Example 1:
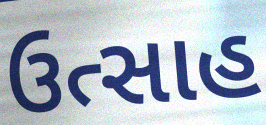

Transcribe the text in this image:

ઉત્સાહ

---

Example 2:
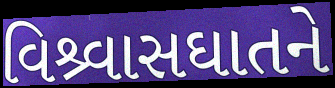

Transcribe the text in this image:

વિશ્ર્વાસઘાતને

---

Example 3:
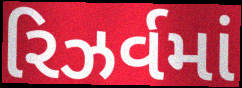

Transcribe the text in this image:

રિઝર્વમાં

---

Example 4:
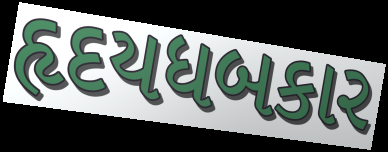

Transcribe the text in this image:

હૃદયધબકાર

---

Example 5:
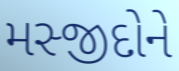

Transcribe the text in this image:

મસ્જીદોને